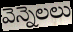
వెన్నెలలు